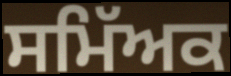
ਸਮਿੱਅਕ